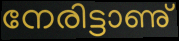
നേരിട്ടാണു്